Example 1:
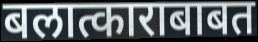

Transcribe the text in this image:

बलात्काराबाबत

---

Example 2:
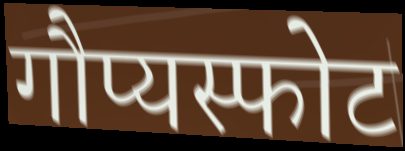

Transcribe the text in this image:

गौप्यस्फोट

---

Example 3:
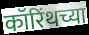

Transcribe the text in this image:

कॉरिंथच्या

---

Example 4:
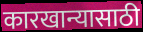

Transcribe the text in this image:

कारखान्यासाठी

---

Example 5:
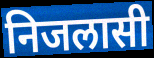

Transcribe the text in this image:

निजलासी